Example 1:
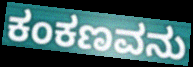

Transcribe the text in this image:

ಕಂಕಣವನು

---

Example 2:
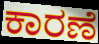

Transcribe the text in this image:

ಕಾರಣೆ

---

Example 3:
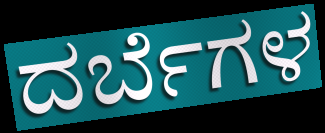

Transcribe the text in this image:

ದರ್ಬೆಗಳ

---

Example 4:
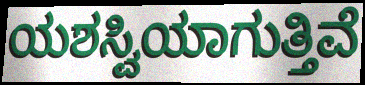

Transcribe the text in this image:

ಯಶಸ್ವಿಯಾಗುತ್ತಿವೆ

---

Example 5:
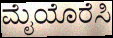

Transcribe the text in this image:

ಮೈಯೊರೆಸಿ